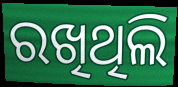
ରଖିଥିଲି